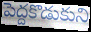
పెద్దకొడుకుని